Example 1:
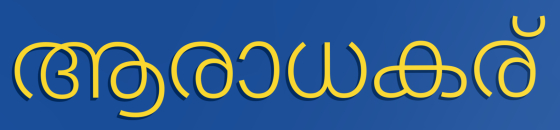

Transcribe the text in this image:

ആരാധകര്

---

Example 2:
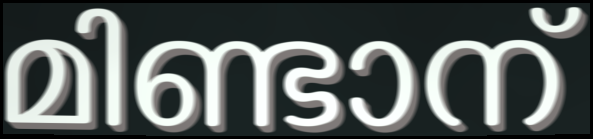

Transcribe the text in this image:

മിണ്ടാന്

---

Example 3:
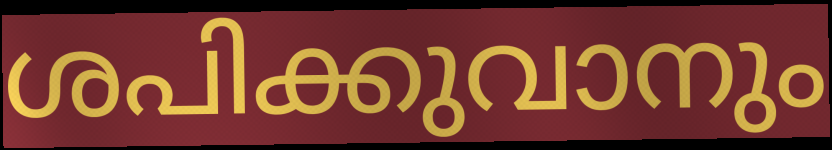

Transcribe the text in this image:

ശപിക്കുവാനും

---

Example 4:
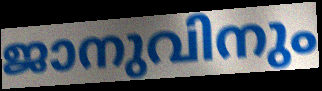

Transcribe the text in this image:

ജാനുവിനും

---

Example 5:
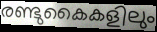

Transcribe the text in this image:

രണ്ടുകൈകളിലും